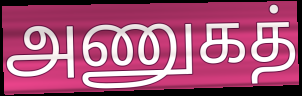
அணுகத்